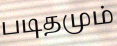
படிதமும்